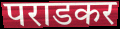
पराडकर